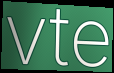
vte